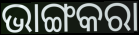
ଭାଙ୍ଗକରା